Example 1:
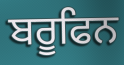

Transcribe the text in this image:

ਬਰੂਫਿਨ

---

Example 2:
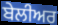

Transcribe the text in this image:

ਬੇਲੀਅਰ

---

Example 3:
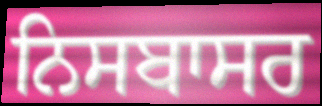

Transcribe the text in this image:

ਨਿਸਬਾਸਰ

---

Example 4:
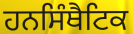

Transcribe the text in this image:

ਹਨਸਿੰਥੈਟਿਕ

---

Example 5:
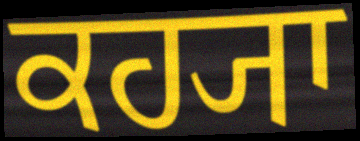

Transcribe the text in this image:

ਕਹ੍ਯਾ